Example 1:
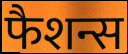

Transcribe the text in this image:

फैशन्स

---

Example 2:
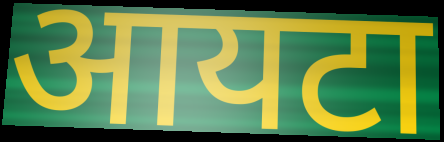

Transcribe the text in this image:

आयटा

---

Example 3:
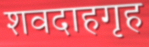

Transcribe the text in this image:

शवदाहगृह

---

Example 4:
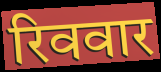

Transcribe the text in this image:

रिववार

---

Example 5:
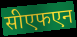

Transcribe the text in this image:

सीएफएन